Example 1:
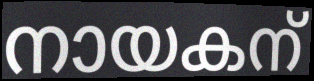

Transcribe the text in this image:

നായകന്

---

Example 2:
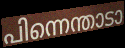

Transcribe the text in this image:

പിന്നെന്താടാ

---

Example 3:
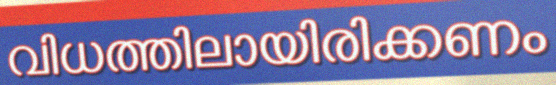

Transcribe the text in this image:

വിധത്തിലായിരിക്കണം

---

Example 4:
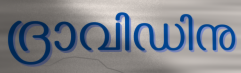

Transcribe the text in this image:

ദ്രാവിഡിനു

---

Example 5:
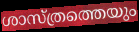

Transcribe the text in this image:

ശാസ്ത്രത്തെയും